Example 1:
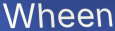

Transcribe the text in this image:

Wheen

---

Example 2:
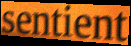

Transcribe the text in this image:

sentient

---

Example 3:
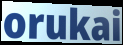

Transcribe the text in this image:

orukai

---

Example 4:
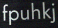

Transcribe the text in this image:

fpuhkj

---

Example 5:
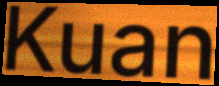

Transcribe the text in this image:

Kuan